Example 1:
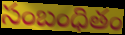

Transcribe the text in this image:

సంబంధితం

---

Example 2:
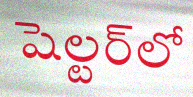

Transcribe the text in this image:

షెల్టర్‌లో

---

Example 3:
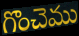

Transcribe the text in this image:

గొంచెము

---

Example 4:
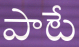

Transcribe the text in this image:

పాటే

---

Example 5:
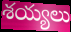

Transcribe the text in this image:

శయ్యలు